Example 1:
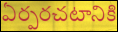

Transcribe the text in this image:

ఏర్పరచటానికి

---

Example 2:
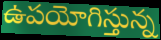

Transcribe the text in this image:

ఉపయోగిస్తున్న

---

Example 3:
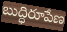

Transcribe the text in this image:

బుద్ధిరూపేణ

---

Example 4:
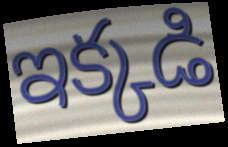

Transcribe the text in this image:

ఇక్కడి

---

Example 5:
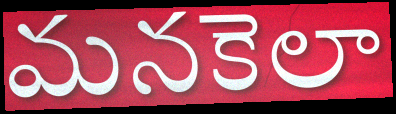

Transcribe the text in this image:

మనకెలా